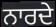
ਨਾਰਦੇ